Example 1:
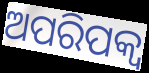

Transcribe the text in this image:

ଅପରିପକ୍ୱ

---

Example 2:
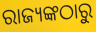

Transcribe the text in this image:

ରାଜ୍ୟଙ୍କଠାରୁ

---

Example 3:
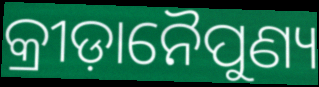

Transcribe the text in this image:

କ୍ରୀଡ଼ାନୈପୁଣ୍ୟ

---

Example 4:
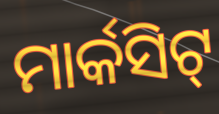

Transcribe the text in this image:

ମାର୍କସିଟ୍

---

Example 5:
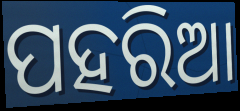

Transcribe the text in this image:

ପହରିଆ